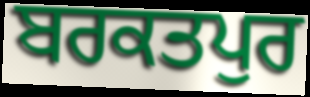
ਬਰਕਤਪੁਰ